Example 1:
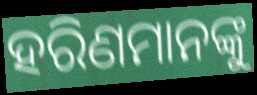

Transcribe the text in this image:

ହରିଣମାନଙ୍କୁ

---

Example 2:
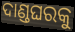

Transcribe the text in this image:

ଦାଣ୍ଡଘରକୁ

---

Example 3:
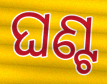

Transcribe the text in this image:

ଘଣ୍ଟ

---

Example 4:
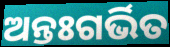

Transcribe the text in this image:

ଅନ୍ତଃଗର୍ଭିତ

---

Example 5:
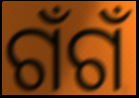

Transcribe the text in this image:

ଗଁଗଁ